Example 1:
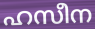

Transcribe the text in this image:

ഹസീന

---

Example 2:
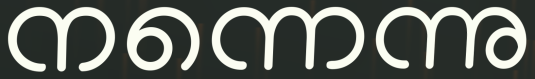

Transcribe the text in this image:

നന്നെന്നു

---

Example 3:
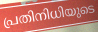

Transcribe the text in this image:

പ്രതിനിധിയുടെ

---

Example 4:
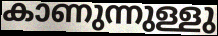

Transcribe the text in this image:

കാണുന്നുള്ളു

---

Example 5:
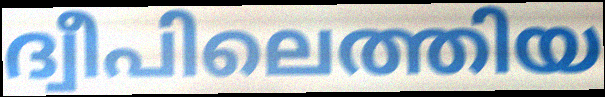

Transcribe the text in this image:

ദ്വീപിലെത്തിയ